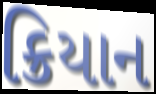
ક્રિયાન